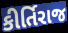
કીર્તિરાજ